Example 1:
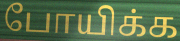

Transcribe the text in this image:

போயிக்க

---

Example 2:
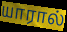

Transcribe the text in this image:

யாரால்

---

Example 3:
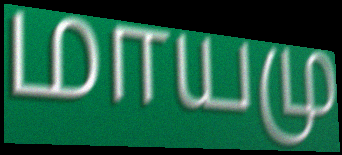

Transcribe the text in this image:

மாயமு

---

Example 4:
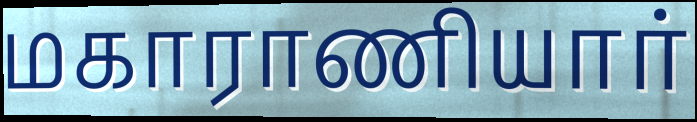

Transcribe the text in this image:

மகாராணியார்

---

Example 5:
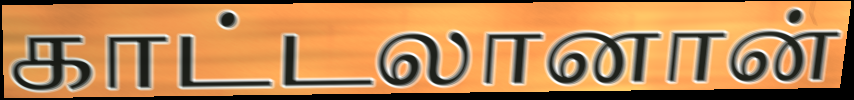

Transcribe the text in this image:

காட்டலானான்